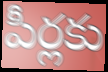
పీర్లకు